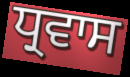
ਧ੍ਰਵਾਸ